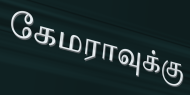
கேமராவுக்கு